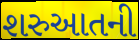
શરુઆતની